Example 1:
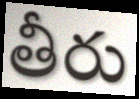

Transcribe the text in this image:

తీరు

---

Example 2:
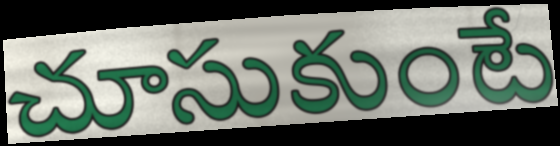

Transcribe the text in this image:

చూసుకుంటే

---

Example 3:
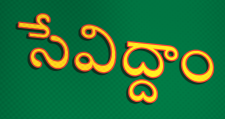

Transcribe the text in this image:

సేవిద్దాం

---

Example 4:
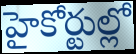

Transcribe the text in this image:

హైకోర్టుల్లో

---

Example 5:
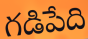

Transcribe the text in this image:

గడిపేది